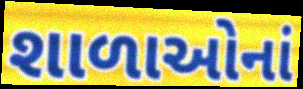
શાળાઓનાં